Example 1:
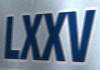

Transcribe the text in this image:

LXXV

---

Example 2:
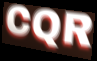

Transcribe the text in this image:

CQR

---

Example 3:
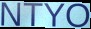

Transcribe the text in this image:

NTYO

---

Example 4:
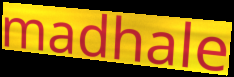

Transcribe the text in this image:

madhale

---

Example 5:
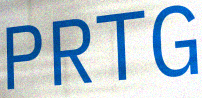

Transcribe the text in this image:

PRTG